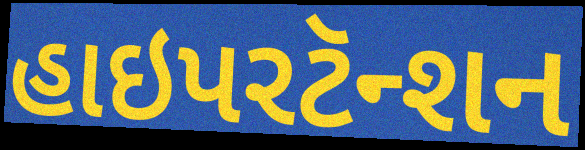
હાઇપરટૅન્શન